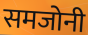
समजोनी